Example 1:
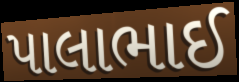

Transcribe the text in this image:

પાલાભાઈ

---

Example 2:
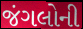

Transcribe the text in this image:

જંગલોની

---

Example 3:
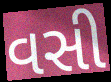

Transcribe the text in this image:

વસી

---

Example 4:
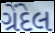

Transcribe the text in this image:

ગ્રેંદેલ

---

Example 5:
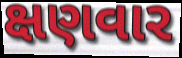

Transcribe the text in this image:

ક્ષણવાર